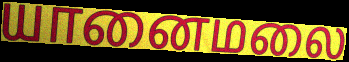
யானைமலை